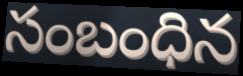
సంబంధిన